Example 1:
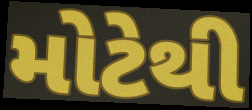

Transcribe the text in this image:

મોટેથી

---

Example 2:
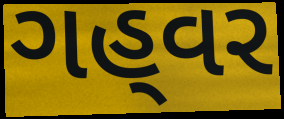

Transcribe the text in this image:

ગહ્‌વર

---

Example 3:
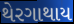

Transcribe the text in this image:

થેરગાથાય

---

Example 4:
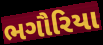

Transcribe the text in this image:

ભગૌરિયા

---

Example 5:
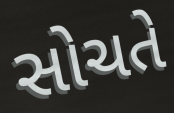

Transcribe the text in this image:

સોચતે